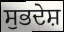
ਸੁਭਦੇਸ਼